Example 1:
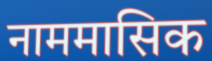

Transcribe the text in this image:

नाममासिक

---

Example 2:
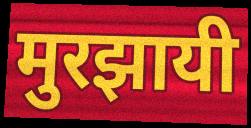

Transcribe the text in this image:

मुरझायी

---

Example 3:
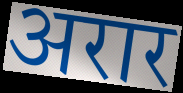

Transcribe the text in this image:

अरार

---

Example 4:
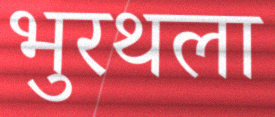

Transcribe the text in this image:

भुरथला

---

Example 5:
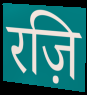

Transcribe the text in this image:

रज़ि